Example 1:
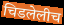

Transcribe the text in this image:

चिडलेलीच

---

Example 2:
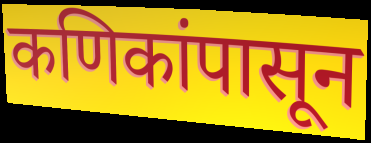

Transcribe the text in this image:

कणिकांपासून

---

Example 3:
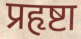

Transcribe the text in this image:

प्रहृष्टा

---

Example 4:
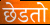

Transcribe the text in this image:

छेडतो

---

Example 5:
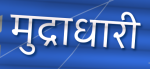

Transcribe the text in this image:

मुद्राधारी